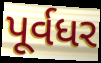
પૂર્વધર